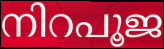
നിറപൂജ